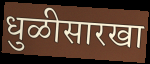
धुळीसारखा